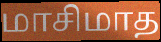
மாசிமாத